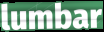
lumbar